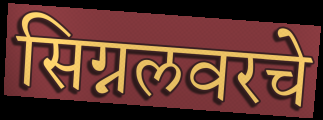
सिग्नलवरचे